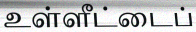
உள்ளீட்டைப்